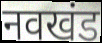
नवखंड